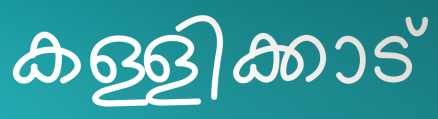
കള്ളിക്കാട്